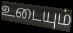
உடையும்